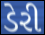
ડેરી